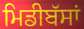
ਮਿਡੀਬੱਸਾਂ